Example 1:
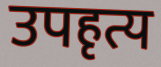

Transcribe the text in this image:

उपहृत्य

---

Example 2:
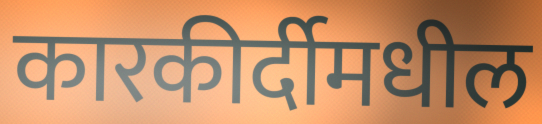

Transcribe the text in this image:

कारकीर्दीमधील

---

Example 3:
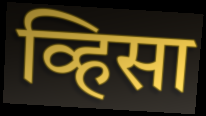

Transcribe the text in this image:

व्हिसा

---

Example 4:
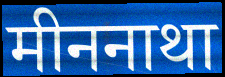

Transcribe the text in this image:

मीननाथा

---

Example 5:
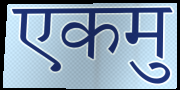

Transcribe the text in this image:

एकमु